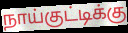
நாய்குட்டிக்கு